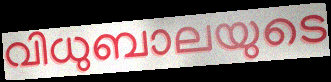
വിധുബാലയുടെ